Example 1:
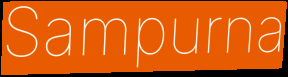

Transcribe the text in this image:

Sampurna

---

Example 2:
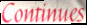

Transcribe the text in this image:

Continues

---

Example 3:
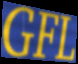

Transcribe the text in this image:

GFL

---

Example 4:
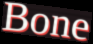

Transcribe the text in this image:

Bone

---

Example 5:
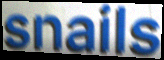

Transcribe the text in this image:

snails